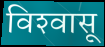
विश्वासू